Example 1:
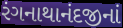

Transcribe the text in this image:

રંગનાથાનંદજીનાં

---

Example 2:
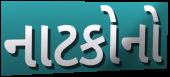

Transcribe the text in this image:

નાટકોનો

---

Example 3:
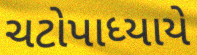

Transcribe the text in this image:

ચટોપાધ્યાયે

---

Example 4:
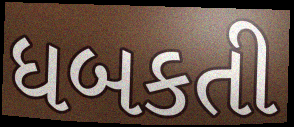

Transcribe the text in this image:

ધબકતી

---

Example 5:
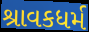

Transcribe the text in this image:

શ્રાવકધર્મ